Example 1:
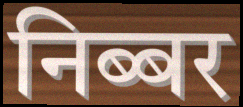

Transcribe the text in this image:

निब्बर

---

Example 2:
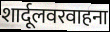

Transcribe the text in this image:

शार्दूलवरवाहना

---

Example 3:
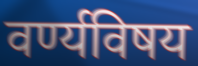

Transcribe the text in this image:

वर्ण्यविषय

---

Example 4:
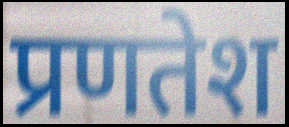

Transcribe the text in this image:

प्रणतेश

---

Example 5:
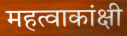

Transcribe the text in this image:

महत्वाकांक्षी